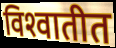
विश्वातीत